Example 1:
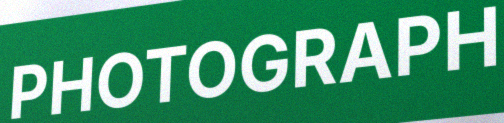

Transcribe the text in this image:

PHOTOGRAPH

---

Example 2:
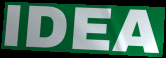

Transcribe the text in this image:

IDEA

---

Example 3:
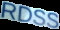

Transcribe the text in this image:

RDSS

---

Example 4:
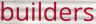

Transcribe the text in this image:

builders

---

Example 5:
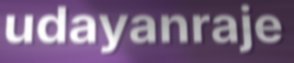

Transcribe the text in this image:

udayanraje